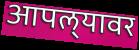
आपल्यावर